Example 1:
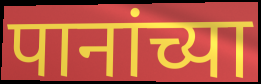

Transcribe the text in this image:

पानांच्या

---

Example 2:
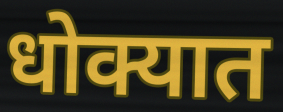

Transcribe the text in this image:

धोक्यात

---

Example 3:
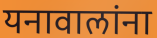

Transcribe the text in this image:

यनावालांना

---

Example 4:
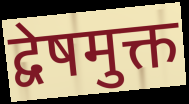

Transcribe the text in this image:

द्वेषमुक्त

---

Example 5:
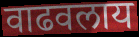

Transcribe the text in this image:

वाढवलाय